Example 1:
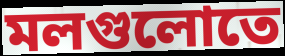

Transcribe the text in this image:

মলগুলোতে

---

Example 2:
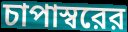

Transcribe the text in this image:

চাপাস্বরের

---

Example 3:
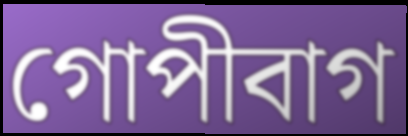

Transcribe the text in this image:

গোপীবাগ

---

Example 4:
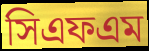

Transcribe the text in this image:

সিএফএম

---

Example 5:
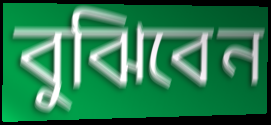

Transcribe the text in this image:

বুঝিবেন